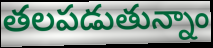
తలపడుతున్నాం